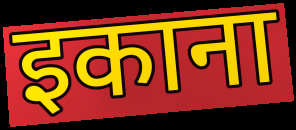
इकाना